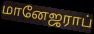
மானேஜராப்